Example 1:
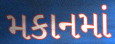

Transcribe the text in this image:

મકાનમાં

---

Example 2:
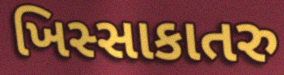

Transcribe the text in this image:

ખિસ્સાકાતરુ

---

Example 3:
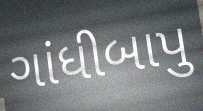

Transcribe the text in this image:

ગાંધીબાપુ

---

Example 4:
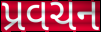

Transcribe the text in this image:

પ્રવચન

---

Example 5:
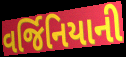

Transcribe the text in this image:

વર્જિનિયાની